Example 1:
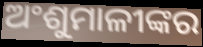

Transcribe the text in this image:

ଅଂଶୁମାଳୀଙ୍କର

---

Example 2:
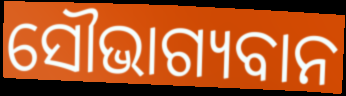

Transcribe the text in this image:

ସୌଭାଗ୍ୟବାନ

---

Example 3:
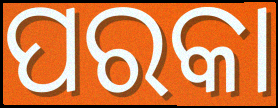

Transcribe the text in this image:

ପରକା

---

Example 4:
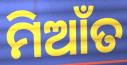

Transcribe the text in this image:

ମିଆଁତ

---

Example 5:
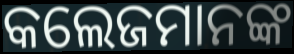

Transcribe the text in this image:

କଲେଜମାନଙ୍କ